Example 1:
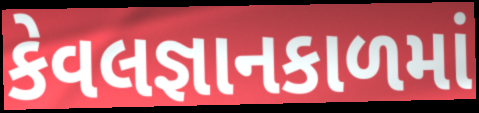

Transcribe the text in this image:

કેવલજ્ઞાનકાળમાં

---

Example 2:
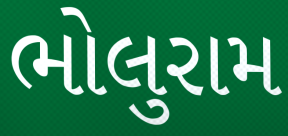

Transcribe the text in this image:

ભોલુરામ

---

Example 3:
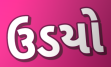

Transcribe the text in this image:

ઉડયો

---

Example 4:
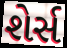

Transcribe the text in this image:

શેર્સ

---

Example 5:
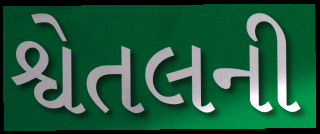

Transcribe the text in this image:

શ્વેતલની